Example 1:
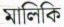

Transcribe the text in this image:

মালিকি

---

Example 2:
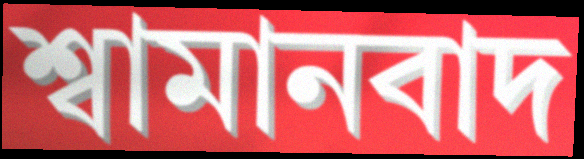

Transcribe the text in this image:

শ্বামানবাদ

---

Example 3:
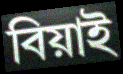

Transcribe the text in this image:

বিয়াই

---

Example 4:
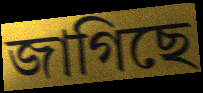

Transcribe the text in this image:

জাগিছে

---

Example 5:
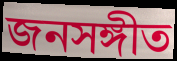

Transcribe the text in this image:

জনসঙ্গীত